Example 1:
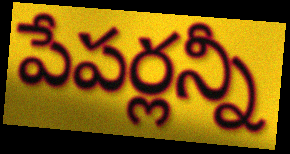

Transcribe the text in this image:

పేపర్లన్నీ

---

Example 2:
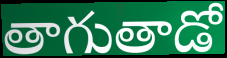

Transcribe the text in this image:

తాగుతాడో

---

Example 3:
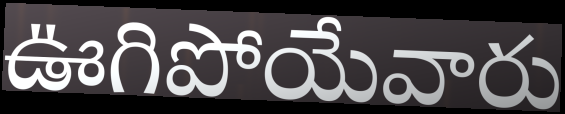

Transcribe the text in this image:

ఊగిపోయేవారు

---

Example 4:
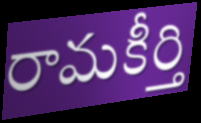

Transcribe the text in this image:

రామకీర్తి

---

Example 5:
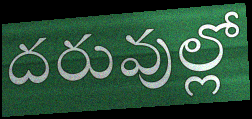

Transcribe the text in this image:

దరువుల్లో